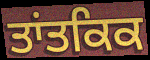
ਤਾਂਤਕਿਕ